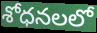
శోధనలలో